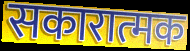
सकारात्‍मक